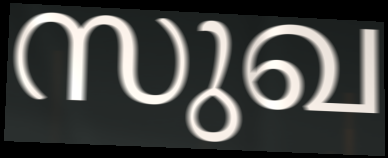
സുഖ